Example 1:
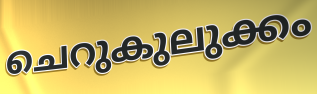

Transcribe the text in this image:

ചെറുകുലുക്കം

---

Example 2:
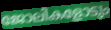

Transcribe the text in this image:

ജോലികളോടും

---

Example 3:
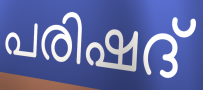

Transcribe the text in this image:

പരിഷദ്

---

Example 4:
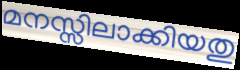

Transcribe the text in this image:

മനസ്സിലാക്കിയതു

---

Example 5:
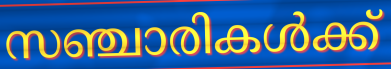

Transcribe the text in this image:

സഞ്ചാരികൾക്ക്